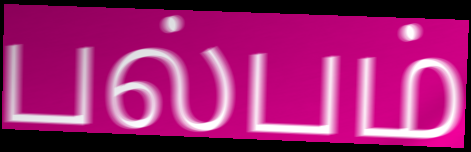
பல்பம்